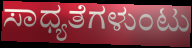
ಸಾಧ್ಯತೆಗಳುಂಟು